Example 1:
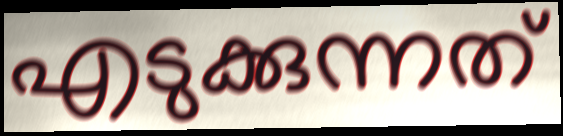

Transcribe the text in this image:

എടുക്കുന്നത്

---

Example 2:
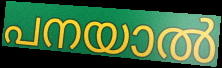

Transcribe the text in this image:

പനയാൽ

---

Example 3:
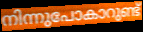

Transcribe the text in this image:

നിന്നുപോകാറുണ്ട്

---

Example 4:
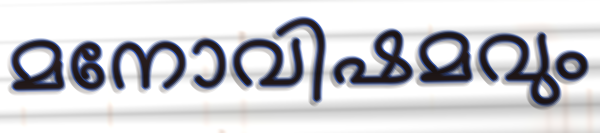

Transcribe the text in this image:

മനോവിഷമവും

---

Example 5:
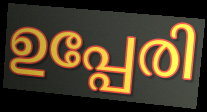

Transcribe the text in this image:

ഉപ്പേരി